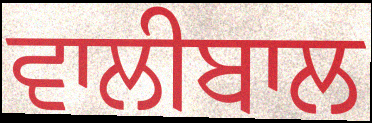
ਵਾਲੀਬਾਲ